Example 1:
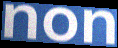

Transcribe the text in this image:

non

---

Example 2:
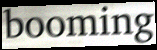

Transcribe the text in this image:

booming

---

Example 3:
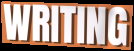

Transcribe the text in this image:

WRITING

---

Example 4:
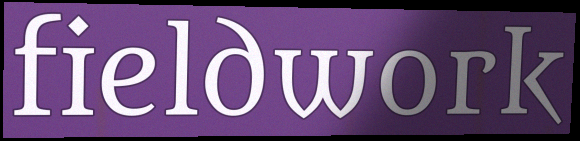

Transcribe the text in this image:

fieldwork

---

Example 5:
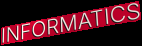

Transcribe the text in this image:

INFORMATICS